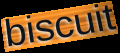
biscuit